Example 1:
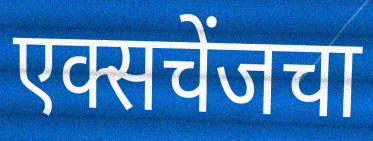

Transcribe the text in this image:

एक्सचेंजचा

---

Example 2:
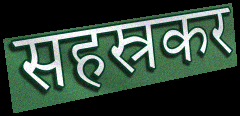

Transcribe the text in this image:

सहस्रकर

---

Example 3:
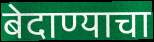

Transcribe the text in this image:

बेदाण्याचा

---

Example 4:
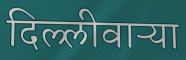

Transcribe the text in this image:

दिल्लीवाऱ्या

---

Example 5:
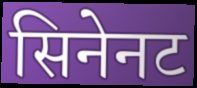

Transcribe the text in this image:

सिनेनट